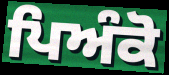
ਪਿਅੰਕੋ